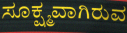
ಸೂಕ್ಷ್ಮವಾಗಿರುವ